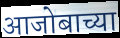
आजोबाच्या